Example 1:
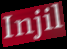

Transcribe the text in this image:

Injil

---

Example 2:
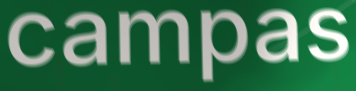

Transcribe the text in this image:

campas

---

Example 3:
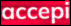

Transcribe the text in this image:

accepi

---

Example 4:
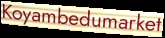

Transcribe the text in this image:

Koyambedumarket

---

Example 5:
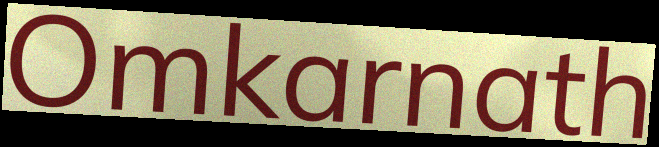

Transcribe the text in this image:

Omkarnath